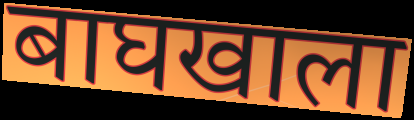
बाघखाला